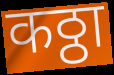
कठ्ठा